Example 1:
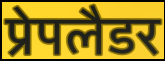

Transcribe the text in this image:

प्रेपलैडर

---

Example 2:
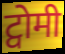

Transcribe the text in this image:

ट्वोमी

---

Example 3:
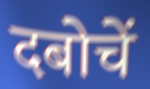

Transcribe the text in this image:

दबोचें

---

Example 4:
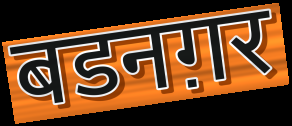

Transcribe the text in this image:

बडनग़र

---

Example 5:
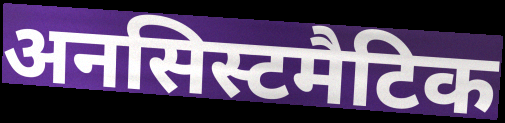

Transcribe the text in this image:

अनसिस्टमैटिक